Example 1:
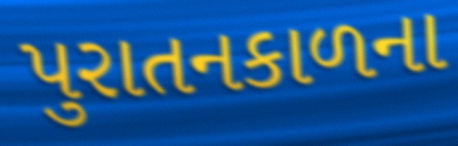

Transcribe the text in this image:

પુરાતનકાળના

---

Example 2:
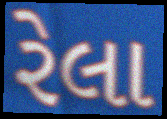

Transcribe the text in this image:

રેલા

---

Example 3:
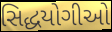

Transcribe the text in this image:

સિદ્ધયોગીઓ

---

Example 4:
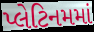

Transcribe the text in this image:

પ્લેટિનમમાં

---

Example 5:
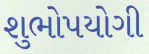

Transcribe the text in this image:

શુભોપયોગી